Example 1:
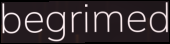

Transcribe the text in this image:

begrimed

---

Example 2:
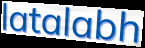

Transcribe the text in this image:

latalabh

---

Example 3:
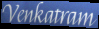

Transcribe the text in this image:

Venkatram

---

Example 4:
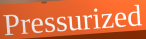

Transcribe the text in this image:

Pressurized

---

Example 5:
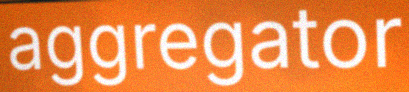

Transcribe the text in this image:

aggregator